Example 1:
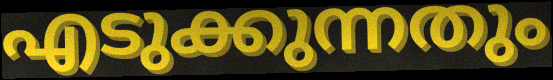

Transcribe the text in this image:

എടുക്കുന്നതും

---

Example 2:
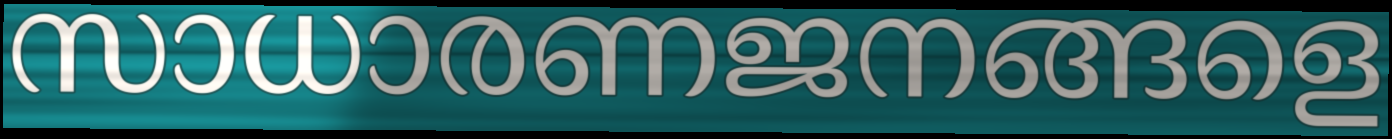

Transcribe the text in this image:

സാധാരണജനങ്ങളെ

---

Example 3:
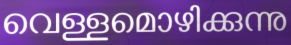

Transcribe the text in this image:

വെള്ളമൊഴിക്കുന്നു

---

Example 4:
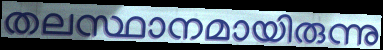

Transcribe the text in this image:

തലസ്ഥാനമായിരുന്നു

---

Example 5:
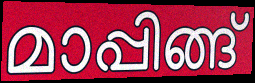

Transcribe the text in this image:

മാപ്പിങ്ങ്